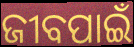
ଜୀବପାଇଁ